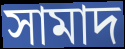
সামাদ